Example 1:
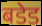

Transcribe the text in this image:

बडेड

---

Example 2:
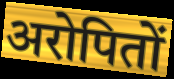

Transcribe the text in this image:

अरोपितों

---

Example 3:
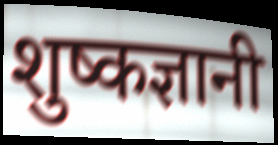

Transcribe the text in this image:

शुष्कज्ञानी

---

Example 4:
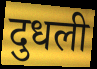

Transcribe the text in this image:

दुधली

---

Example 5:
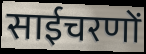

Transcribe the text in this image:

साईचरणों